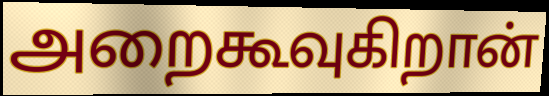
அறைகூவுகிறான்